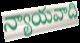
న్యాయవాది